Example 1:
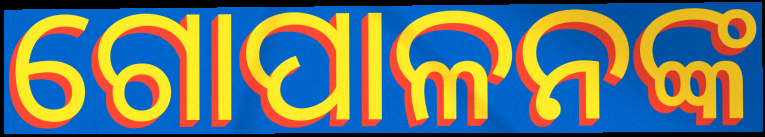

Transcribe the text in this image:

ଗୋପାଳନଙ୍କ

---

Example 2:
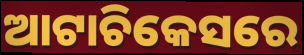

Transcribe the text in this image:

ଆଟାଚିକେସରେ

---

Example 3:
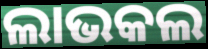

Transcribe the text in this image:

ଲାଭକଲ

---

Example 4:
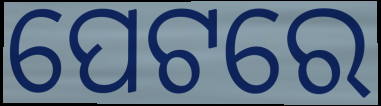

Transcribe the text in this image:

ପେଟରେ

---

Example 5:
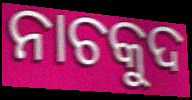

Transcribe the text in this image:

ନାଚକୁଦ